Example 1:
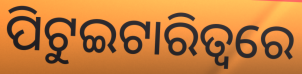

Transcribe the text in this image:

ପିଟୁଇଟାରିତ୍ୱରେ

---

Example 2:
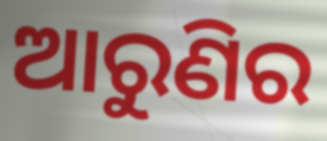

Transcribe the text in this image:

ଆରୁଣିର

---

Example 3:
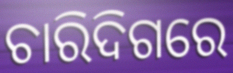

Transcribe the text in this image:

ଚାରିଦିଗରେ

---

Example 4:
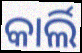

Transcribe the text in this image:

କାର୍ଲି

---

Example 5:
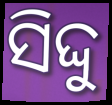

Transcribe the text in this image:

ସିଦ୍ଦୁ